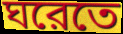
ঘরেতে